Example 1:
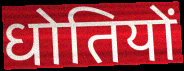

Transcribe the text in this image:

धोतियों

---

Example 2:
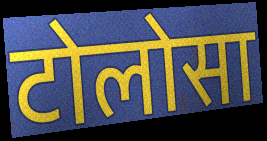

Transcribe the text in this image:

टोलोसा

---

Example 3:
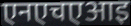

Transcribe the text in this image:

एनएचएआइ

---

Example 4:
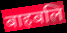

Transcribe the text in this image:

बाहबलि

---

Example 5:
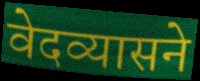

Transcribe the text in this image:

वेदव्यासने